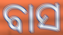
ବାସ